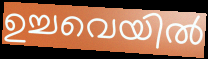
ഉച്ചവെയിൽ